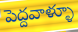
పెద్దవాళ్ళూ